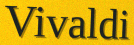
Vivaldi